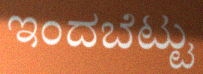
ಇಂದಬೆಟ್ಟು